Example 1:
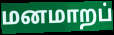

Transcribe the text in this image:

மனமாறப்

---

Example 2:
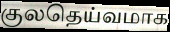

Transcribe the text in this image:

குலதெய்வமாக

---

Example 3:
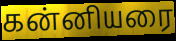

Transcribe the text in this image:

கன்னியரை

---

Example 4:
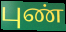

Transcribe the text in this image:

புண்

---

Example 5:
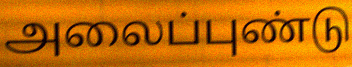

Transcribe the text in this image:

அலைப்புண்டு